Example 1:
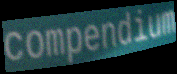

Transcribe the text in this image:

compendium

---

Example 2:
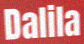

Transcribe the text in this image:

Dalila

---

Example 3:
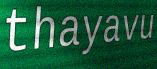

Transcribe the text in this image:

thayavu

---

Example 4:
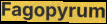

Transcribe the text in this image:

Fagopyrum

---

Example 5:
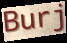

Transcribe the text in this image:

Burj